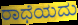
ರಾಧೆಯದು